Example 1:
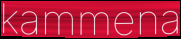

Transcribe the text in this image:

kammena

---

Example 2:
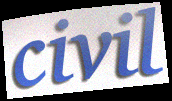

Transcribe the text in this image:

civil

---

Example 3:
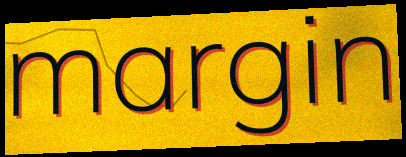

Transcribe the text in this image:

margin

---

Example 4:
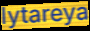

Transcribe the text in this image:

Iytareya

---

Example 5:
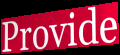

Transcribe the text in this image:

Provide